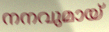
നനവുമായ്